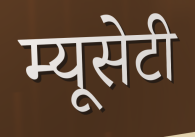
म्यूसेटी